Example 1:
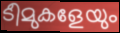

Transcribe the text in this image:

ടീമുകളേയും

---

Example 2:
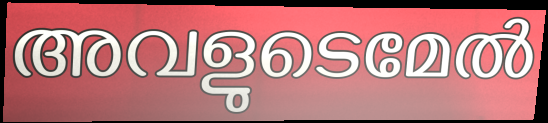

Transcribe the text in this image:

അവളുടെമേൽ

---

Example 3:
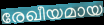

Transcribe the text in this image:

രേഖീയമായ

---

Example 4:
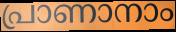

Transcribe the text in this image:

പ്രാണാനാം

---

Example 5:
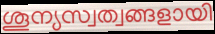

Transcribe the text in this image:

ശൂന്യസ്വത്വങ്ങളായി